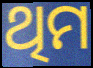
ଥିମ